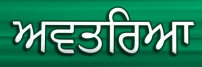
ਅਵਤਰਿਆ